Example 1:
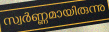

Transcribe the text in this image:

സ്വർണ്ണമായിരുന്നു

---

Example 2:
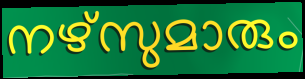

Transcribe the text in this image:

നഴ്സുമാരും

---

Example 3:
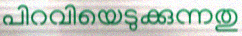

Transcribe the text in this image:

പിറവിയെടുക്കുന്നതു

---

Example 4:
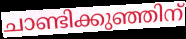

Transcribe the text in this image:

ചാണ്ടിക്കുഞ്ഞിന്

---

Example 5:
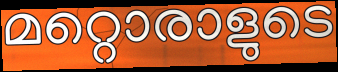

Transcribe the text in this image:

മറ്റൊരാളുടെ